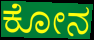
ಕೋನ